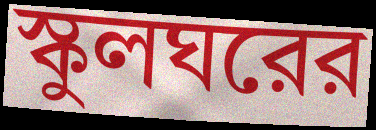
স্কুলঘরের